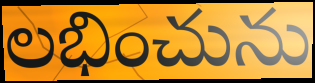
లభించును